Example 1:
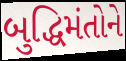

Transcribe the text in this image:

બુદ્ધિમંતોને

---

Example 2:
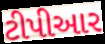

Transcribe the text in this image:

ટીપીઆર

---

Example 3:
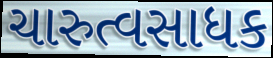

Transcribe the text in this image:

ચારુત્વસાધક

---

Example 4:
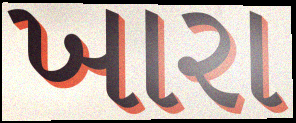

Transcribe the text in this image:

ખારા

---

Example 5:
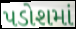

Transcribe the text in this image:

પડોશમાં